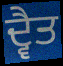
ਦ੍ਵੈਤ